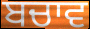
ਬਚਾਵ